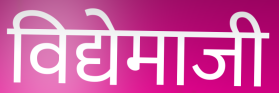
विद्येमाजी